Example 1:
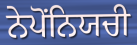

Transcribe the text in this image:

ਨੇਪੋਂਨਿਯਚੀ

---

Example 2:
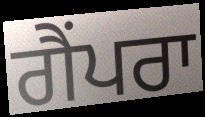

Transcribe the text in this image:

ਗੈਂਪਰਾ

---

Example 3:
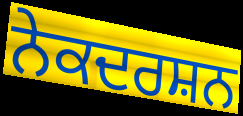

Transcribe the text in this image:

ਨੇਕਦਰਸ਼ਨ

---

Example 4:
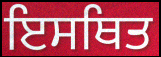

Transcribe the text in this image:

ਇਸਥਿਤ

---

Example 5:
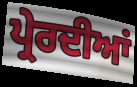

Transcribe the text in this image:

ਪ੍ਰੇਰਦੀਆਂ